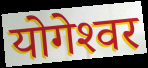
योगेश्‍वर